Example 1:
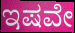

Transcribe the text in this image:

ಇಷವೇ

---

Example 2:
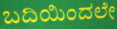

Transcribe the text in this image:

ಬದಿಯಿಂದಲೇ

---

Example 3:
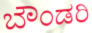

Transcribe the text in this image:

ಬೌಂಡರಿ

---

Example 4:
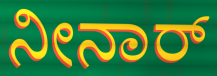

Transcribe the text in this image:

ನೀನಾರ್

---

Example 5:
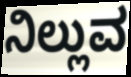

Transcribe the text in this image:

ನಿಲ್ಲುವ